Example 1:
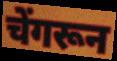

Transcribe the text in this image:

चेंगरून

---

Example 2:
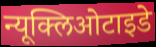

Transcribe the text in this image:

न्यूक्लिओटाइडे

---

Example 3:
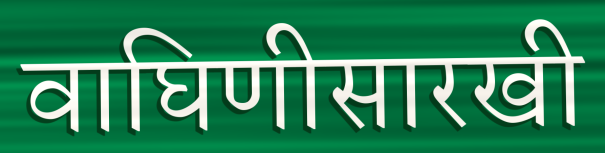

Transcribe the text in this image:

वाघिणीसारखी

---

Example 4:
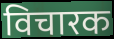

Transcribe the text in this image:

विचारक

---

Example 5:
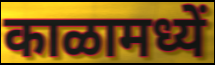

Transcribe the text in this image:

काळामध्यें